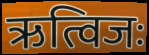
ऋत्विजः